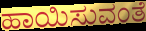
ಹಾಯಿಸುವಂತೆ